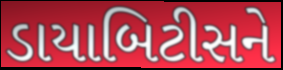
ડાયાબિટીસને